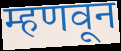
म्हणवून